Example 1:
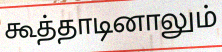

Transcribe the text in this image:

கூத்தாடினாலும்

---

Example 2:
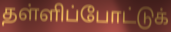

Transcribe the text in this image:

தள்ளிப்போட்டுக்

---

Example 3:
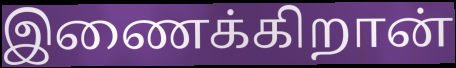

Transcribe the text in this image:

இணைக்கிறான்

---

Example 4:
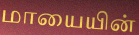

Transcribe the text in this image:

மாயையின்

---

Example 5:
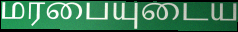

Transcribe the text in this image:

மரபையுடைய